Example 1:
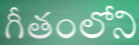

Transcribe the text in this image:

గీతంలోని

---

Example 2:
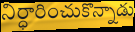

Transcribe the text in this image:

నిర్ధారించుకొన్నాడు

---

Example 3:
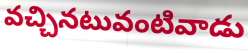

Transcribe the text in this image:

వచ్చినటువంటివాడు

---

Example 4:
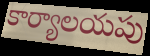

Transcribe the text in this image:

కార్యాలయపు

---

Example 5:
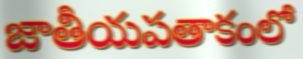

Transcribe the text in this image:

జాతీయపతాకంలో